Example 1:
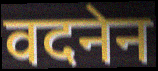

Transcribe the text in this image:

वदनेन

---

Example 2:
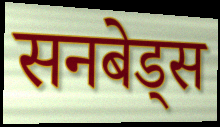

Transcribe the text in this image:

सनबेड्स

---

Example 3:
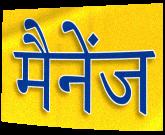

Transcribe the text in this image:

मैनेंज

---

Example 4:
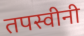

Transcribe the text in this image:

तपस्वीनी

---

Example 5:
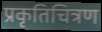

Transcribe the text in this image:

प्रकृतिचित्रण